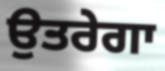
ਉਤਰੇਗਾ